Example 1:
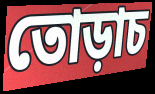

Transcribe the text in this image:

তোড়াচ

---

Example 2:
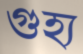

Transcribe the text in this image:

গুহ্য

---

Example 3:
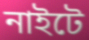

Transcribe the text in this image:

নাইটে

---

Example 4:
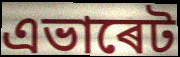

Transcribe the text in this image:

এভাৰেট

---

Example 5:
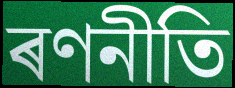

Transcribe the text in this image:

ৰণনীতি